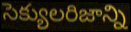
సెక్యులరిజాన్ని